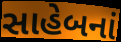
સાહેબનાં